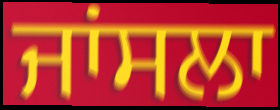
ਜਾਂਸਲਾ